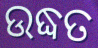
ଉଦ୍ଧତ